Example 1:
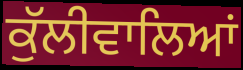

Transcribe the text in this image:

ਕੁੱਲੀਵਾਲਿਆਂ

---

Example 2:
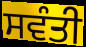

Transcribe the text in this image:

ਸਵੰਤੀ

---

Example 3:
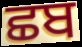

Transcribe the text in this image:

ਛਬ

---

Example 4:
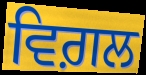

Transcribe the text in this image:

ਵਿਗ਼ਲ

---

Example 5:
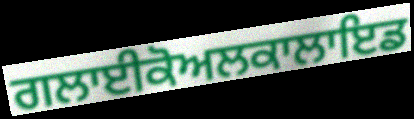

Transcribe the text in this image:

ਗਲਾਈਕੋਅਲਕਾਲਾਇਡ